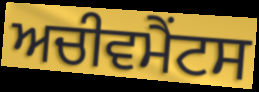
ਅਚੀਵਮੈਂਟਸ